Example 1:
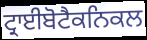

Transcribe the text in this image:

ਟ੍ਰਾਈਬੋਟੈਕਨਿਕਲ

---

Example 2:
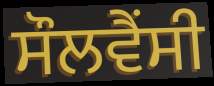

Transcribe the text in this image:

ਸੌਲਵੈਂਸੀ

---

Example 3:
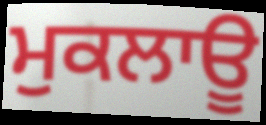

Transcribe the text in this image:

ਮੁਕਲਾਊ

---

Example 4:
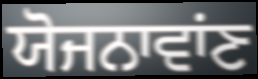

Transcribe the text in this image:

ਯੋਜਨਾਵਾਂਣ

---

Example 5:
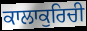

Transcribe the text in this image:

ਕਾਲਾਕੁਰਿਚੀ